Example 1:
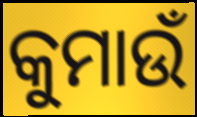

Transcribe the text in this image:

କୁମାଉଁ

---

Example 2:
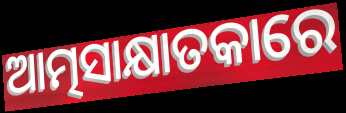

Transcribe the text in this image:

ଆତ୍ମସାକ୍ଷାତକାରେ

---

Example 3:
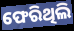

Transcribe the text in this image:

ଫେରିଥିଲି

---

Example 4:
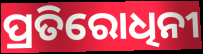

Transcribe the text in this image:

ପ୍ରତିରୋଧିନୀ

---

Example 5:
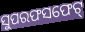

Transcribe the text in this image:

ସୁପରଫସଫେଟ୍